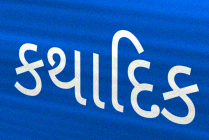
કથાદિક